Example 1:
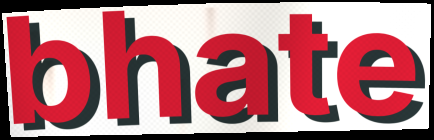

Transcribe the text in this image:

bhate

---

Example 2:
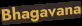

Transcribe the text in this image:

Bhagavana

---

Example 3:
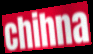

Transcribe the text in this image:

chihna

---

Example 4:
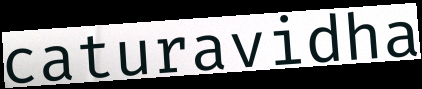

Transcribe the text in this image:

caturavidha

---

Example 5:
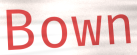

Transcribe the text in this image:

Bown